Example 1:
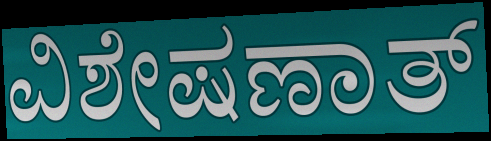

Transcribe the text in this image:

ವಿಶೇಷಣಾತ್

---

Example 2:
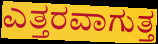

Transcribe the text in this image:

ಎತ್ತರವಾಗುತ್ತ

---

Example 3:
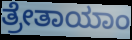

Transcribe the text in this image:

ತ್ರೇತಾಯಾಂ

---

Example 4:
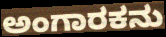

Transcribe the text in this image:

ಅಂಗಾರಕನು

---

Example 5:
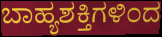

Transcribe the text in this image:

ಬಾಹ್ಯಶಕ್ತಿಗಳಿಂದ